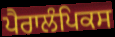
ਪੈਰਾਲੰਪਿਕਸ